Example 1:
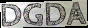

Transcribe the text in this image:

DGDA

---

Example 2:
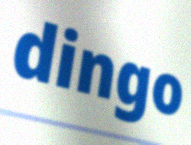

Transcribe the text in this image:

dingo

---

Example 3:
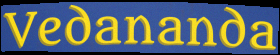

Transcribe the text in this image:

Vedananda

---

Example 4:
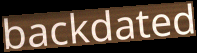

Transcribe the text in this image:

backdated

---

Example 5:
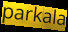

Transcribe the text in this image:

parkala